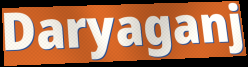
Daryaganj